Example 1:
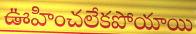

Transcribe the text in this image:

ఊహించలేకపోయాయి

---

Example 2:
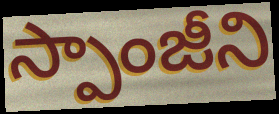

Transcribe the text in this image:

స్పాంజీని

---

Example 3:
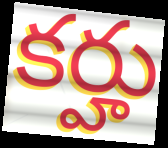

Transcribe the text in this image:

కర్హు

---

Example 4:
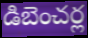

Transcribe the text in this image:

డిబెంచర్ల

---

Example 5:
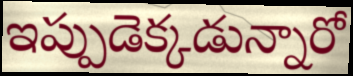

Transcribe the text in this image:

ఇప్పుడెక్కడున్నారో